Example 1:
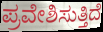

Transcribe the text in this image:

ಪ್ರವೇಶಿಸುತ್ತಿದೆ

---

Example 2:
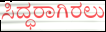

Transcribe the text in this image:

ಸಿದ್ಧರಾಗಿರಲು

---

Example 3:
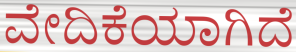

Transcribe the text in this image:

ವೇದಿಕೆಯಾಗಿದೆ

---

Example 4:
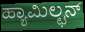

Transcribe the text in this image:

ಹ್ಯಾಮಿಲ್ಟನ್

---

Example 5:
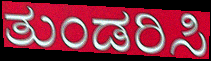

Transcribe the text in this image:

ತುಂಡರಿಸಿ